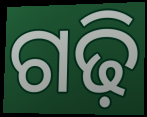
ଗଢ଼ି